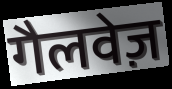
गैलवेज़